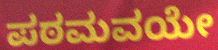
ಪಠಮವಯೇ